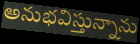
అనుభవిస్తున్నాను